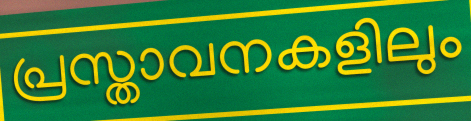
പ്രസ്താവനകളിലും